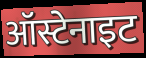
ऑस्टेनाइट